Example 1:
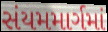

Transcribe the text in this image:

સંયમમાર્ગમાં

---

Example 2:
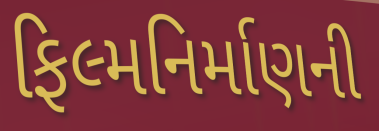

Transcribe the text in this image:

ફિલ્મનિર્માણની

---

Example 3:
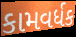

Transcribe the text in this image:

કામવર્ધક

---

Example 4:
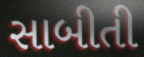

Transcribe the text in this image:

સાબીતી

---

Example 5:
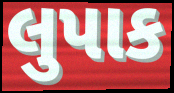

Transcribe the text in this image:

લુપાક